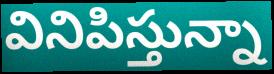
వినిపిస్తున్నా